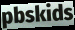
pbskids